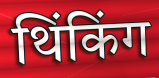
थिंकिंग